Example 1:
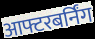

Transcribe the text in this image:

आफ्टरबर्निंग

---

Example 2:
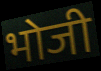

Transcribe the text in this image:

भोजी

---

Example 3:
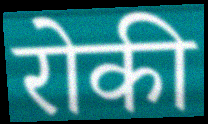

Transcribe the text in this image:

रोकी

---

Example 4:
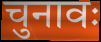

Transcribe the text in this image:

चुनावः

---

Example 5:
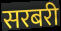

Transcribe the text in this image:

सरबरी